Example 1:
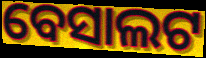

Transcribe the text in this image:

ବେସାଲଟ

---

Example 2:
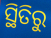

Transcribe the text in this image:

ସ୍ଥିତିରୁ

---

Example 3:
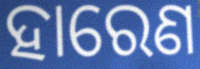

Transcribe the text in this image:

ହାରେଣ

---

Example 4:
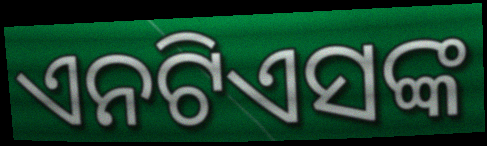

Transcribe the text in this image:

ଏନଟିଏସଙ୍କ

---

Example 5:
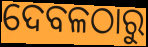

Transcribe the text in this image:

ଦେବଳଠାରୁ